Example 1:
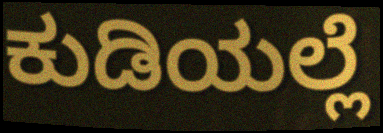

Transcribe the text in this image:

ಕುಡಿಯಲ್ಲೆ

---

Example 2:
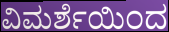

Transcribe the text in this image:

ವಿಮರ್ಶೆಯಿಂದ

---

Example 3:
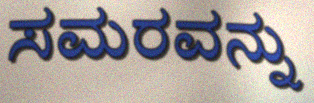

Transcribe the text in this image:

ಸಮರವನ್ನು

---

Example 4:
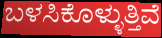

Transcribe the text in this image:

ಬಳಸಿಕೊಳ್ಳುತ್ತಿವೆ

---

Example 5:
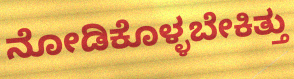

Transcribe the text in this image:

ನೋಡಿಕೊಳ್ಳಬೇಕಿತ್ತು